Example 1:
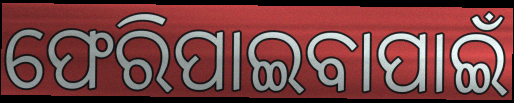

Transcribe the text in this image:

ଫେରିପାଇବାପାଇଁ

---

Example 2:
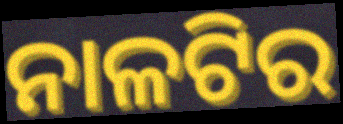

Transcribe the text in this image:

ନାଳଟିର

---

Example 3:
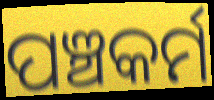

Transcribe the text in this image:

ପଞ୍ଚକର୍ମ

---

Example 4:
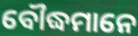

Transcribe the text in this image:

ବୌଦ୍ଧମାନେ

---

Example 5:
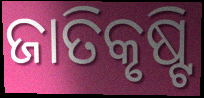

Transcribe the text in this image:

ଜାତିକୃଷ୍ଟି